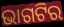
ଭାଗଟିର